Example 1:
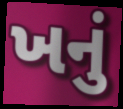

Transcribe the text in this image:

ખનું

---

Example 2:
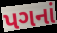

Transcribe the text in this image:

પગનાં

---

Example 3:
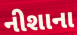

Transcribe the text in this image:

નીશાના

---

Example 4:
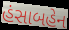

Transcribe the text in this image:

હંસાબહેન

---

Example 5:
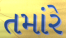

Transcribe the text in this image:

તમાંરે